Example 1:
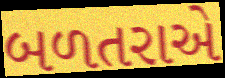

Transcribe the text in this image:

બળતરાએ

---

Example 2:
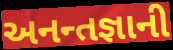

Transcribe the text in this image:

અનન્તજ્ઞાની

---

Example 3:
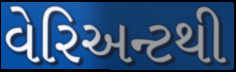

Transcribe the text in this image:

વેરિઅન્ટથી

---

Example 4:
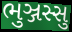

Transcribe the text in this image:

ભુઞ્જસ્સુ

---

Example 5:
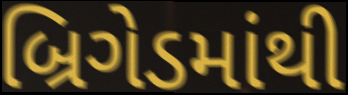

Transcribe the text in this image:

બ્રિગેડમાંથી